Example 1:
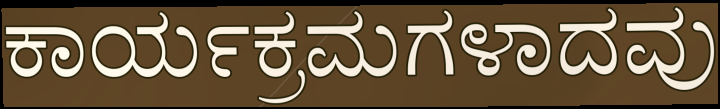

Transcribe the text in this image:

ಕಾರ್ಯಕ್ರಮಗಳಾದವು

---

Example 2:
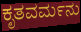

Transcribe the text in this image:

ಕೃತವರ್ಮನು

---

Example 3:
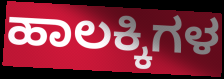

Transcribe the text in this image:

ಹಾಲಕ್ಕಿಗಳ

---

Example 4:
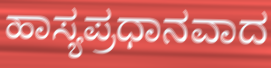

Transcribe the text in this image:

ಹಾಸ್ಯಪ್ರಧಾನವಾದ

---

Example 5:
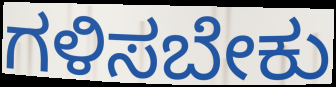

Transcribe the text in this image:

ಗಳಿಸಬೇಕು